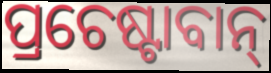
ପ୍ରଚେଷ୍ଟାବାନ୍